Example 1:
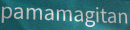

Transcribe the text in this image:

pamamagitan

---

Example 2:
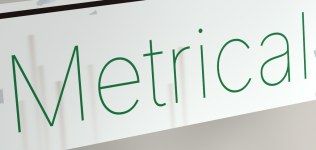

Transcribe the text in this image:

Metrical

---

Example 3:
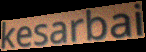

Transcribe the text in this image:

kesarbai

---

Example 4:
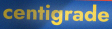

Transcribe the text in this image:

centigrade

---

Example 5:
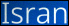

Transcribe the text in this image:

Isran